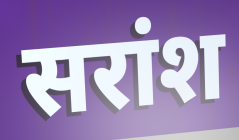
सरांश